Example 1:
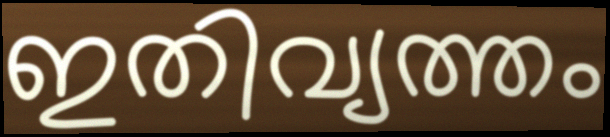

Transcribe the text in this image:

ഇതിവ്യത്തം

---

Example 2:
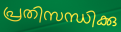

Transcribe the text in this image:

പ്രതിസന്ധിക്കു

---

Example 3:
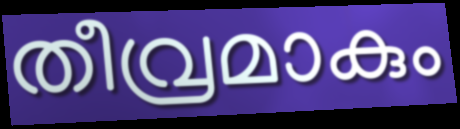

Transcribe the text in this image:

തീവ്രമാകും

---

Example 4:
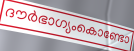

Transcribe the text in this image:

ദൗർഭാഗ്യംകൊണ്ടോ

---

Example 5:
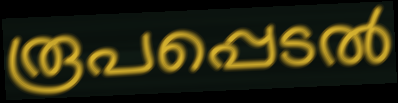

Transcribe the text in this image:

രൂപപ്പെടൽ